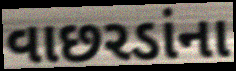
વાછરડાંના